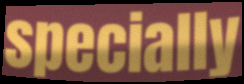
specially